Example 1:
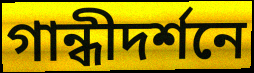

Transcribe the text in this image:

গান্ধীদর্শনে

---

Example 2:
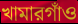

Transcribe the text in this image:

খামারগাঁও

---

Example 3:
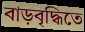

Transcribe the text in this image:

বাড়বৃদ্ধিতে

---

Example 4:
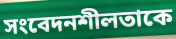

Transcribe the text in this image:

সংবেদনশীলতাকে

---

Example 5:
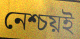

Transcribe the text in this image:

নেশ্চয়ই